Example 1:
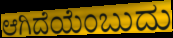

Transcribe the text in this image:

ಆಗಿದೆಯೆಂಬುದು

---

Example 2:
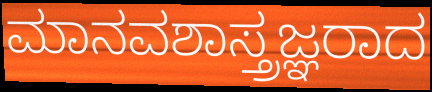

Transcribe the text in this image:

ಮಾನವಶಾಸ್ತ್ರಜ್ಞರಾದ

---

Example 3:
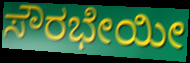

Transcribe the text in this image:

ಸೌರಭೇಯೀ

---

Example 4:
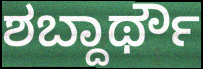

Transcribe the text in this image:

ಶಬ್ದಾರ್ಥೌ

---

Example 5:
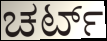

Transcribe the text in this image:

ಚರ್ಟ್